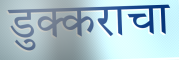
डुक्कराचा